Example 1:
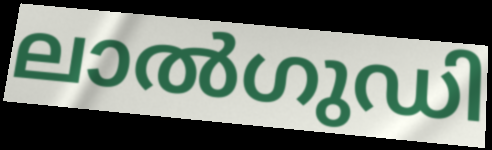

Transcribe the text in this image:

ലാൽഗുഡി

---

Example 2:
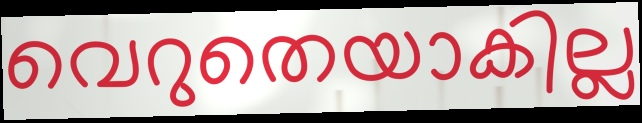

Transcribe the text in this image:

വെറുതെയാകില്ല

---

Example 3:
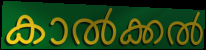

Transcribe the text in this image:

കാൽക്കൽ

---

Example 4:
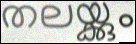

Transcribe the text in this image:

തലയ്ക്കും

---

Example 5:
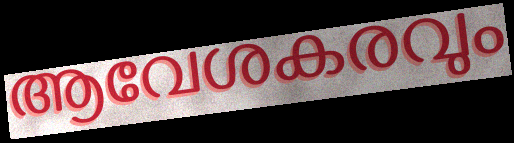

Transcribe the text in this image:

ആവേശകരവും